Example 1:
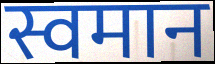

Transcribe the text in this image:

स्वमान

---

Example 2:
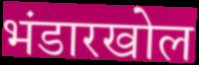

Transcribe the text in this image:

भंडारखोल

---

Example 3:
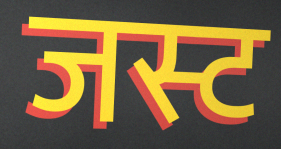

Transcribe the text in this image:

जस्ट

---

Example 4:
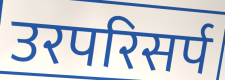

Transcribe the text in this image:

उरपरिसर्प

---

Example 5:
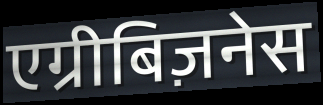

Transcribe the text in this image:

एग्रीबिज़नेस